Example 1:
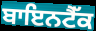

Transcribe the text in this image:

ਬਾਇਨਟੈੱਕ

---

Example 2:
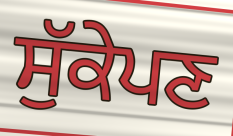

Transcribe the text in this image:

ਸੁੱਕੇਪਣ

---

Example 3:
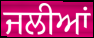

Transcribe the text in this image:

ਜਲੀਆਂ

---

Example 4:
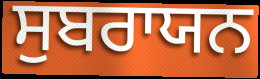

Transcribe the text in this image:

ਸੁਬਰਾਯਨ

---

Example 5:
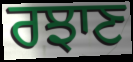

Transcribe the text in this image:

ਰਝਾਣ